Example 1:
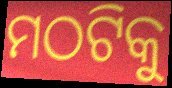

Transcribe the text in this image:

ମଠଟିକୁ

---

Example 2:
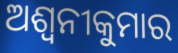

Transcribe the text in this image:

ଅଶ୍ୱନୀକୁମାର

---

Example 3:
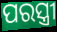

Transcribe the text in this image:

ପରସ୍ତ୍ରୀ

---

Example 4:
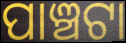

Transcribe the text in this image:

ପାଞ୍ଚଟା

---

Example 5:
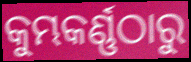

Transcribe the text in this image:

କୁମ୍ଭକର୍ଣ୍ଣଠାରୁ